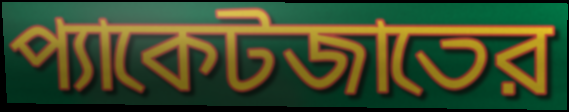
প্যাকেটজাতের